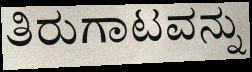
ತಿರುಗಾಟವನ್ನು